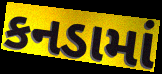
કનડામાં